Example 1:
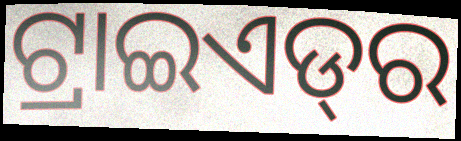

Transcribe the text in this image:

ଟ୍ରାଇଏଡ୍‌ର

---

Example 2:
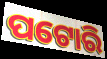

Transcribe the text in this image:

ପଟୋରି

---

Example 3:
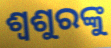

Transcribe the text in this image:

ଶ୍ୱଶୁରଙ୍କୁ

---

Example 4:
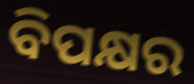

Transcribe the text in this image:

ବିପକ୍ଷର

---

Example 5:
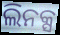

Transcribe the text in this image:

ଲିନକ୍ସ